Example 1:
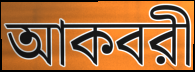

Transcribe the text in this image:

আকবরী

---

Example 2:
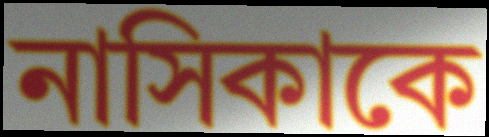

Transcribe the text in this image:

নাসিকাকে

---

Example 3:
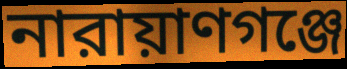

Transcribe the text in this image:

নারায়াণগঞ্জে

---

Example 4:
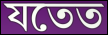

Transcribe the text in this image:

যতেত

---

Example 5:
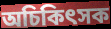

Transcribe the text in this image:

অচিকিৎসক